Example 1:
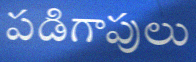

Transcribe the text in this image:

పడిగాపులు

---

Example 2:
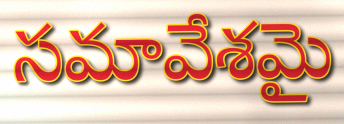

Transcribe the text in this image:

సమావేశమై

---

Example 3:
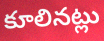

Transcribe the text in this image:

కూలినట్లు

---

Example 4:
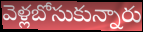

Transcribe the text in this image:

వెళ్లబోసుకున్నారు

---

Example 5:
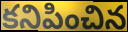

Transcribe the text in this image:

కనిపించిన